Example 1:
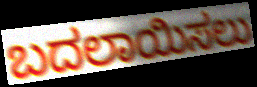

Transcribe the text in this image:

ಬದಲಾಯಿಸಲು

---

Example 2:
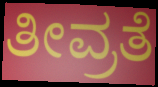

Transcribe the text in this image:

ತೀವ್ರತೆ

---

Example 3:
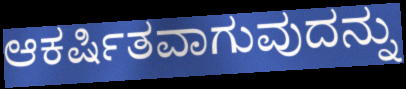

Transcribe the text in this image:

ಆಕರ್ಷಿತವಾಗುವುದನ್ನು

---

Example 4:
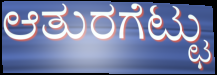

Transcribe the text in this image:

ಆತುರಗೆಟ್ಟು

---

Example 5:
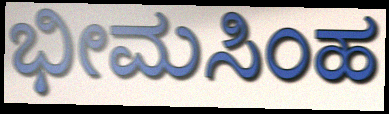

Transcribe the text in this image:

ಭೀಮಸಿಂಹ